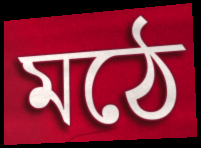
মঠে